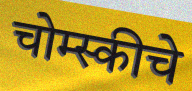
चोम्स्कीचे